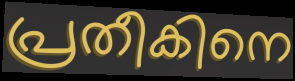
പ്രതീകിനെ